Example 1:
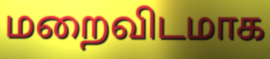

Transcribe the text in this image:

மறைவிடமாக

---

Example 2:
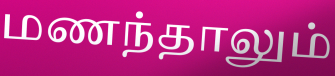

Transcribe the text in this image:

மணந்தாலும்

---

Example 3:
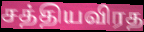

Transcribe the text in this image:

சத்தியவிரத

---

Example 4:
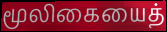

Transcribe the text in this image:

மூலிகையைத்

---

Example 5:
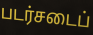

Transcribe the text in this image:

படர்சடைப்